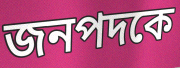
জনপদকে